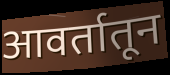
आवर्तातून